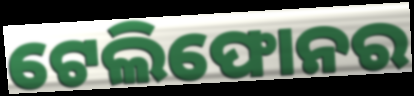
ଟେଲିଫୋନର